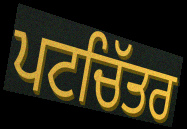
ਪਟਚਿੱਤਰ